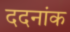
ददनांक